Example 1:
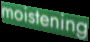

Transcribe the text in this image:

moistening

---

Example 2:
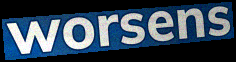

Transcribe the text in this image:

worsens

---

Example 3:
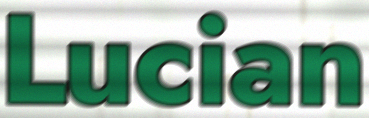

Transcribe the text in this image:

Lucian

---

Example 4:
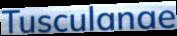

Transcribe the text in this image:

Tusculanae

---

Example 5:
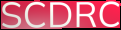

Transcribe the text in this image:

SCDRC